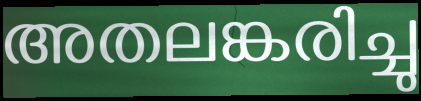
അതലങ്കരിച്ചു